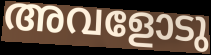
അവളോടു